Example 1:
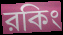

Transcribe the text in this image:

রকিং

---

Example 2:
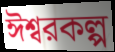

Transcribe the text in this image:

ঈশ্বরকল্প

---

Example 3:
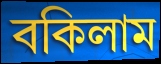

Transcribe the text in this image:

বকিলাম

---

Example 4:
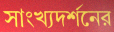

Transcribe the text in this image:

সাংখ্যদর্শনের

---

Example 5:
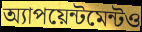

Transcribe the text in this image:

অ্যাপয়েন্টমেন্টও